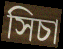
সিচা